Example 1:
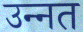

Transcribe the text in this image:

उन्‍नत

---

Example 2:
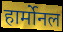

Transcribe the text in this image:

हार्मोनल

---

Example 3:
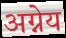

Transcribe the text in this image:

अग्नेय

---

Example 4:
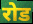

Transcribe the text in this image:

रोड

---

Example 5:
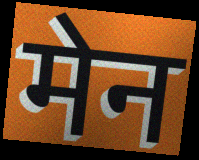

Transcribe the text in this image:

मेन